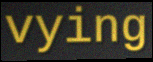
vying